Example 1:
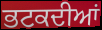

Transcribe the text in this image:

ਭਟਕਦੀਆਂ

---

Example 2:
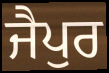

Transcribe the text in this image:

ਜੈਪੁਰ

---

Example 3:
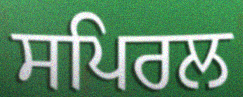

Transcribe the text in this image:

ਸਪਿਰਲ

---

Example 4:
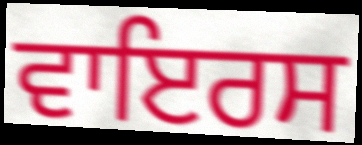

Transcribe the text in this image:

ਵਾਇਰਸ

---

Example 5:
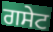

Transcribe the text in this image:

ਗਸੇਟ